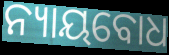
ନ୍ୟାୟବୋଧ